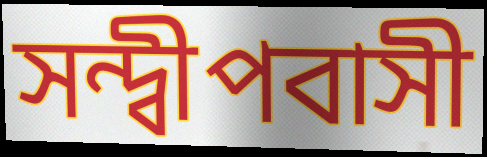
সন্দ্বীপবাসী